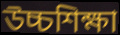
উচ্চশিক্ষা